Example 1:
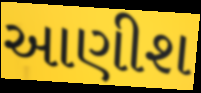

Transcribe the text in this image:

આણીશ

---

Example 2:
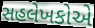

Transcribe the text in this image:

સહલેખકોએ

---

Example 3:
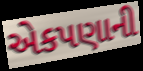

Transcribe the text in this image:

એકપણાની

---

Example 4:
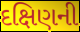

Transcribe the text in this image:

દક્ષિણની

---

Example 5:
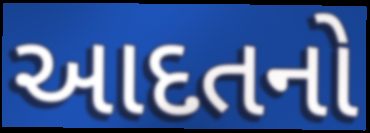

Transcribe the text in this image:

આદતનો